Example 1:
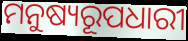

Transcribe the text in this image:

ମନୁଷ୍ୟରୂପଧାରୀ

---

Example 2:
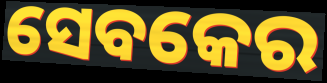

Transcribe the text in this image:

ସେବକେର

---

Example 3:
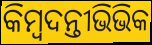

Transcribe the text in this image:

କିମ୍ବଦନ୍ତୀଭିଭିକ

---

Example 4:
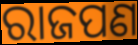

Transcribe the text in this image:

ରାଜପଣ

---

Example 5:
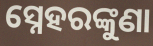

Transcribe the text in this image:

ସ୍ନେହରଙ୍କୁଣା